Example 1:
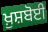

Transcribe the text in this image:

ਖ਼ੁਸ਼ਬੋਈ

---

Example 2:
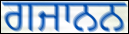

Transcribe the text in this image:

ਗਜਾਨਨ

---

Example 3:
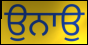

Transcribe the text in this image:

ਉਨਾਉ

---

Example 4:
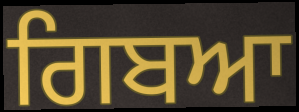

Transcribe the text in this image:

ਗਿਬਆ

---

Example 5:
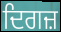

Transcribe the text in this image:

ਦਿਗਜ਼